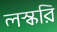
লস্করি